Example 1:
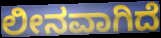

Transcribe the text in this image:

ಲೀನವಾಗಿದೆ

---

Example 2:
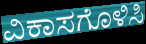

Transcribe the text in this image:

ವಿಕಾಸಗೊಳಿಸಿ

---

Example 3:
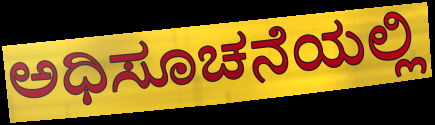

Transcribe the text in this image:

ಅಧಿಸೂಚನೆಯಲ್ಲಿ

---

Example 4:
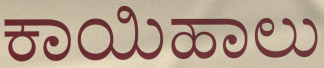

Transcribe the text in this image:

ಕಾಯಿಹಾಲು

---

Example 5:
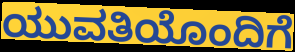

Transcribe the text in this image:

ಯುವತಿಯೊಂದಿಗೆ